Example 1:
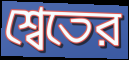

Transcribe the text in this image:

শ্বেতের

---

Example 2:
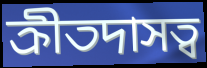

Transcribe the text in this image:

ক্রীতদাসত্ব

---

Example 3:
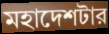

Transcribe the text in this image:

মহাদেশটার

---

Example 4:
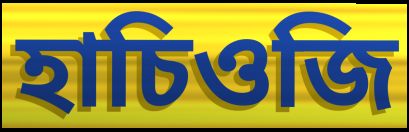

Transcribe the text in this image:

হাচিওজি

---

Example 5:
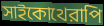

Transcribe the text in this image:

সাইকোথেরাপি